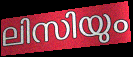
ലിസിയും